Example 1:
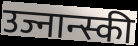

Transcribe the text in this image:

उज्नान्स्की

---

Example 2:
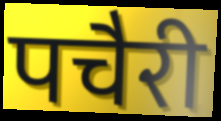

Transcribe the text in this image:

पचैरी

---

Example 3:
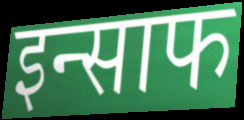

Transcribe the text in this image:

इन्साफ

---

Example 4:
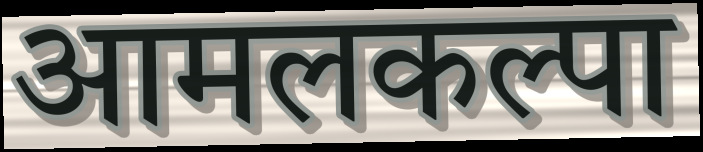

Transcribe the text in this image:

आमलकल्पा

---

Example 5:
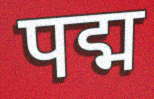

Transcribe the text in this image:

पद्म